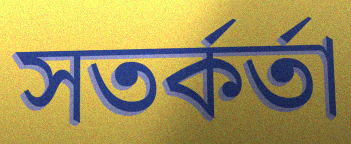
সতর্কর্তা